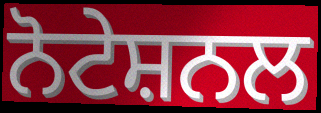
ਨੋਟੇਸ਼ਨਲ